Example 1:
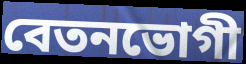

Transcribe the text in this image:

বেতনভোগী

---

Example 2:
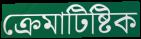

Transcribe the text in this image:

ক্রেমাটিষ্টিক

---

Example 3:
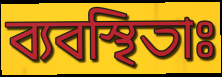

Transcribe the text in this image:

ব্যবস্থিতাঃ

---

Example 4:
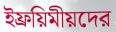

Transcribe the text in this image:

ইফ্রয়িমীয়দের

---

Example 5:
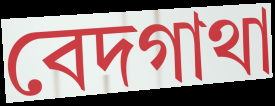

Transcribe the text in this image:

বেদগাথা